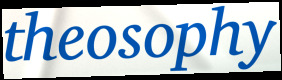
theosophy